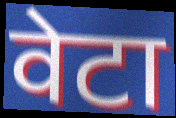
वेटा